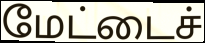
மேட்டைச்